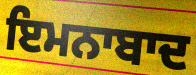
ਇਮਨਾਬਾਦ